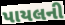
પાયલની